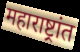
महाराष्ट्रांत